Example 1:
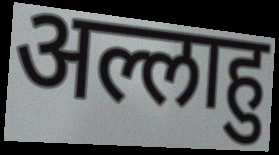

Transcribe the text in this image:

अल्लाहु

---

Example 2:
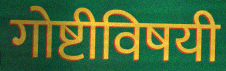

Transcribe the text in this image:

गोष्टीविषयी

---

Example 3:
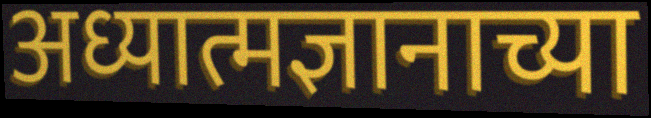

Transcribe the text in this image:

अध्यात्मज्ञानाच्या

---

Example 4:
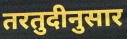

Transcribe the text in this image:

तरतुदीनुसार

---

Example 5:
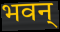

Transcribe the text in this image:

भवन्